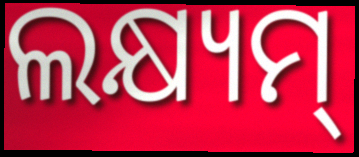
ଲକ୍ଷ୍ୟମ୍